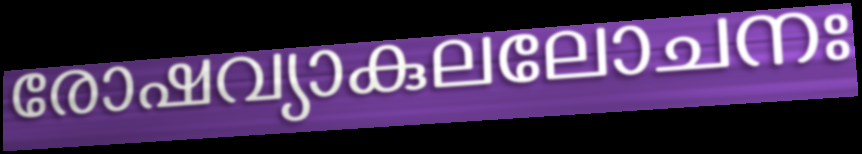
രോഷവ്യാകുലലോചനഃ